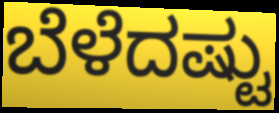
ಬೆಳೆದಷ್ಟು